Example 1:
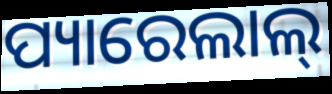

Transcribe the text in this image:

ପ୍ୟାରେଲାଲ୍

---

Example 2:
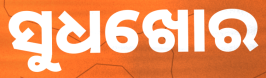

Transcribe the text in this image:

ସୁଧଖୋର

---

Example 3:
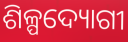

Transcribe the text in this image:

ଶିଳ୍ପଦ୍ୟୋଗୀ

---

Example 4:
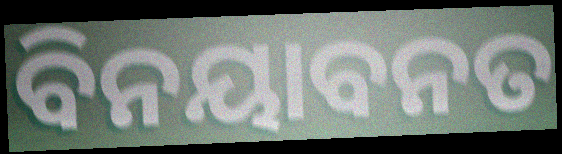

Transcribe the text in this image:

ବିନୟାବନତ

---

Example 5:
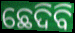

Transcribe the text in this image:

ଛେଦିବି